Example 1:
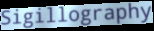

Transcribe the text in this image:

Sigillography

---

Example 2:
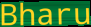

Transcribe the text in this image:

Bharu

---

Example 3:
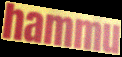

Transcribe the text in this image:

hammu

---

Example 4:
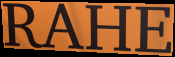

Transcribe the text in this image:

RAHE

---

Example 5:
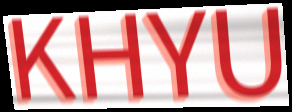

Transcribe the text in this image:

KHYU